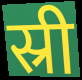
स्री